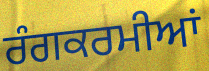
ਰੰਗਕਰਮੀਆਂ